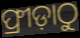
ଫ୍ରୀଡ଼ାଠୁ